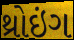
થ્રોઇંગ